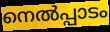
നെൽപ്പാടം